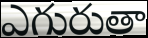
ఎగురుతా